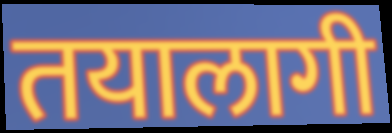
तयालागी